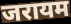
जरायम